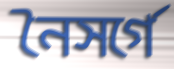
নৈসর্গে